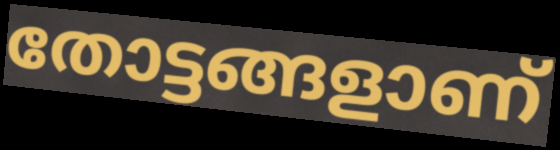
തോട്ടങ്ങളാണ്